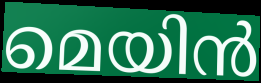
മെയിൻ